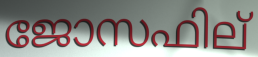
ജോസഫില്